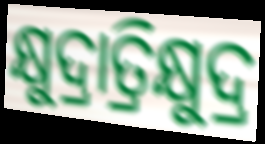
କ୍ଷୁଦ୍ରାତ୍ରିକ୍ଷୁଦ୍ର